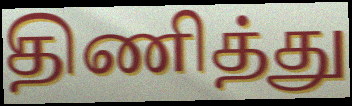
திணித்து